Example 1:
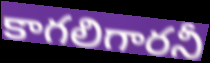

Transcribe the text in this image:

కాగలిగారనీ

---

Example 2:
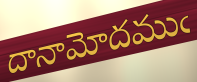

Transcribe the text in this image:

దానామోదముఁ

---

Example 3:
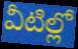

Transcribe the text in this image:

వీటిల్లో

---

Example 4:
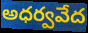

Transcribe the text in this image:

అధర్వవేద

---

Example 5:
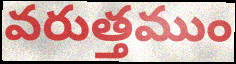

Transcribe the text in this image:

వరుత్తముం